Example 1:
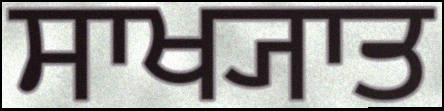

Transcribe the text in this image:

ਸਾਖ੍ਯਾਤ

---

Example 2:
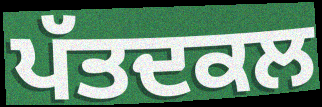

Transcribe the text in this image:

ਪੱਤਦਕਲ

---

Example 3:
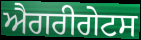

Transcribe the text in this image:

ਐਗਰੀਗੇਟਸ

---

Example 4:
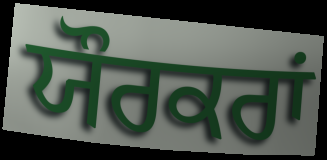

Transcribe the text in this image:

ਯੌਰਕਰਾਂ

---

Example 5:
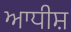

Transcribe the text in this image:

ਆਧੀਸ਼